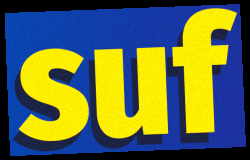
suf